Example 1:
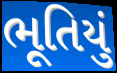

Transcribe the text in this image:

ભૂતિયું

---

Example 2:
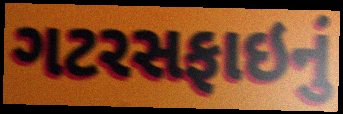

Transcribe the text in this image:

ગટરસફાઇનું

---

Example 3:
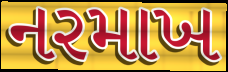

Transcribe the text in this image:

નરમાખ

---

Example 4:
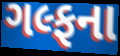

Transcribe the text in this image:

ગલ્ફના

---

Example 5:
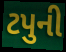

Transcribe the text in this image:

ટપુની